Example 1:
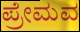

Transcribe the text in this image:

ಪ್ರೇಮವ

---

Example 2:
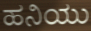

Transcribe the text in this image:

ಹನಿಯು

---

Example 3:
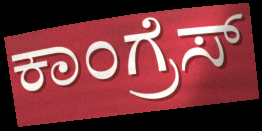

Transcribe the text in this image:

ಕಾಂಗ್ರೆಸ್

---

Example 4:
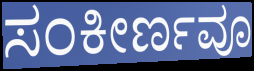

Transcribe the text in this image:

ಸಂಕೀರ್ಣವೂ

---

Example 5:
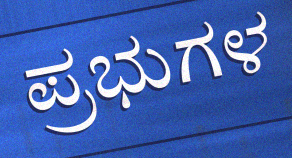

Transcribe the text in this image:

ಪ್ರಭುಗಳ